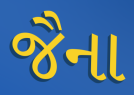
જૈના